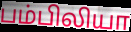
பம்பிலியா